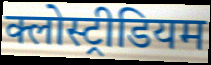
क्लोस्ट्रीडियम